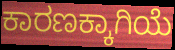
ಕಾರಣಕ್ಕಾಗಿಯೆ